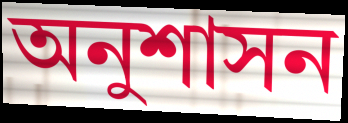
অনুশাসন